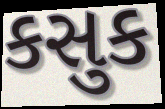
કસુક